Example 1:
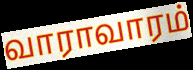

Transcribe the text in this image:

வாராவாரம்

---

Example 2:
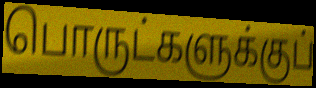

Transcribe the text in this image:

பொருட்களுக்குப்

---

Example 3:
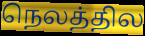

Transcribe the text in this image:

நெலத்தில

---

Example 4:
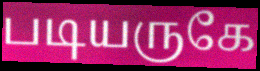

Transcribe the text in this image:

படியருகே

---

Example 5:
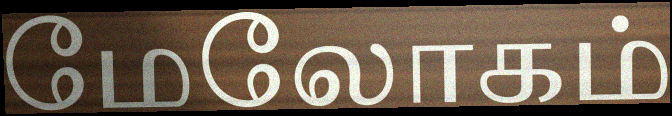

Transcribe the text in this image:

மேலோகம்